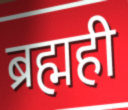
ब्रह्मही